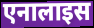
एनालाइस